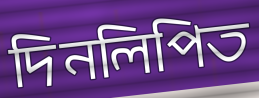
দিনলিপিত